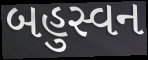
બહુસ્વન